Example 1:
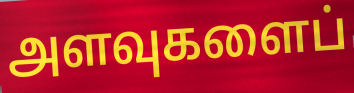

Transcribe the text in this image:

அளவுகளைப்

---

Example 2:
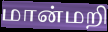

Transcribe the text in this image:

மான்மறி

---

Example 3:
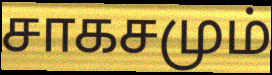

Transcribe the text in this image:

சாகசமும்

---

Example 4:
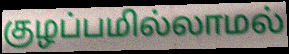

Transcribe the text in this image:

குழப்பமில்லாமல்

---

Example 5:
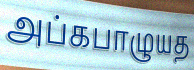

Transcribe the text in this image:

அப்கபாழுயத